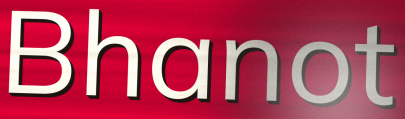
Bhanot